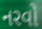
નરવો